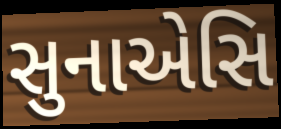
સુનાએસિ